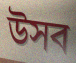
উসব